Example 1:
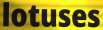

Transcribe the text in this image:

lotuses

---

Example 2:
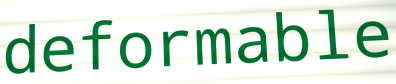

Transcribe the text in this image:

deformable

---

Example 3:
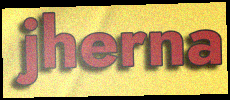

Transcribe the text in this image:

jherna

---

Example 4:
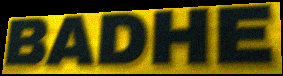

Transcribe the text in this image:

BADHE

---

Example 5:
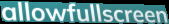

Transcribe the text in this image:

allowfullscreen